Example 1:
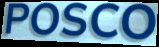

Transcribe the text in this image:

POSCO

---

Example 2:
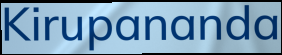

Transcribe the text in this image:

Kirupananda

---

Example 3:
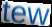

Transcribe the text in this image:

tew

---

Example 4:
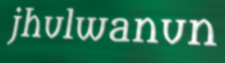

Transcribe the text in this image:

jhulwanun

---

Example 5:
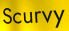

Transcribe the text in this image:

Scurvy